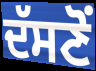
ਦੱਸਣੋਂ